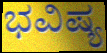
ಭವಿಷ್ಯ